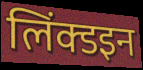
लिंक्‍डइन